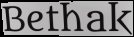
Bethak